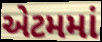
એટમમાં